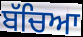
ਬੱਚਿਆ